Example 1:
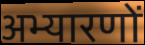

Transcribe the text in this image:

अभ्यारणों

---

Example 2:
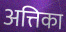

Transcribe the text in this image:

अत्तिका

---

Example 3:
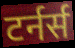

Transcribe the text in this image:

टर्नर्स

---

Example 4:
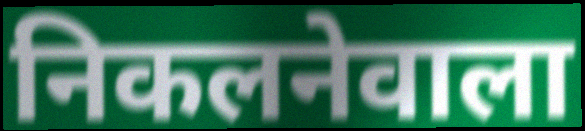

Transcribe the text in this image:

निकलनेवाला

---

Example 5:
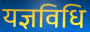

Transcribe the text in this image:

यज्ञविधि